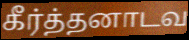
கீர்த்தனாடவ